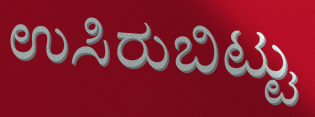
ಉಸಿರುಬಿಟ್ಟು